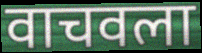
वाचवला